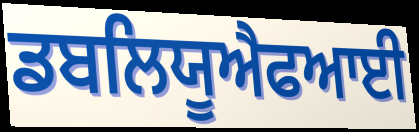
ਡਬਲਿਯੂਐਫਆਈ